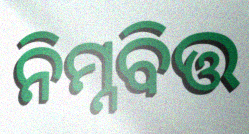
ନିମ୍ନବିତ୍ତ